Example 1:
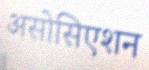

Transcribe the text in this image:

असोसिएशन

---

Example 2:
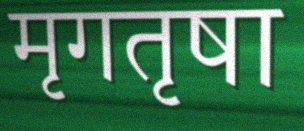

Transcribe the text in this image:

मृगतृषा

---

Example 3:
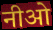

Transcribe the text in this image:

नीओ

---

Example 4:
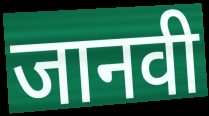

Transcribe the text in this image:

जानवी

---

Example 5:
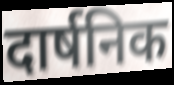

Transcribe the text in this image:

दार्षनिक